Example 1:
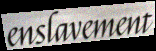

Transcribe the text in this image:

enslavement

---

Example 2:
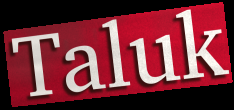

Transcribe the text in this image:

Taluk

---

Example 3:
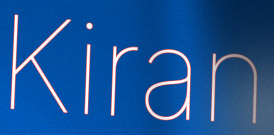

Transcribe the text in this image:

Kiran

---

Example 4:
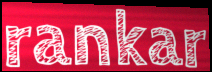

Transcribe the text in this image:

rankar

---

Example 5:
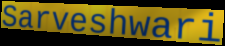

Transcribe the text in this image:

Sarveshwari